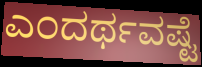
ಎಂದರ್ಥವಷ್ಟೆ